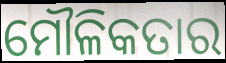
ମୌଳିକତାର